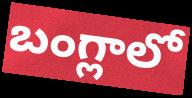
బంగ్లాలో